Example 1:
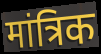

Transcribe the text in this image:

मांत्रिक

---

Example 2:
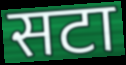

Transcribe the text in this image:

सटा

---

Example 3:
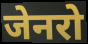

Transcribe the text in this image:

जेनरो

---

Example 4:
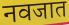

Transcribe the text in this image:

नवजात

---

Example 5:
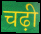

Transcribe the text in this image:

चढ़ी